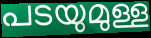
പടയുമുള്ള